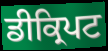
ਡੀਕ੍ਰਿਪਟ